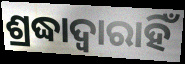
ଶ୍ରଦ୍ଧାଦ୍ୱାରାହିଁ